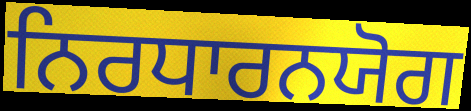
ਨਿਰਧਾਰਨਯੋਗ